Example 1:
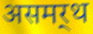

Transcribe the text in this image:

असमर्थ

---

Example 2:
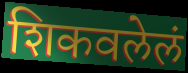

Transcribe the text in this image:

शिकवलेलं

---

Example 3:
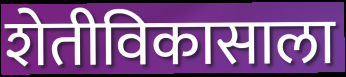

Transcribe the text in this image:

शेतीविकासाला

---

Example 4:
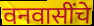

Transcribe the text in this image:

वनवासींचे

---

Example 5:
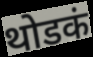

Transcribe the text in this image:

थोडकं